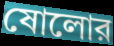
ষোলোর